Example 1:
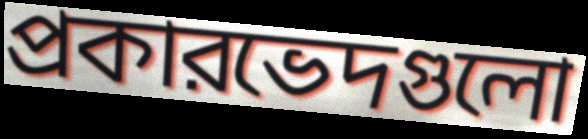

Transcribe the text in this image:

প্রকারভেদগুলো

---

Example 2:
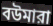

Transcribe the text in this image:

বউমারা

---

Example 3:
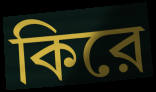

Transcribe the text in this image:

কিরে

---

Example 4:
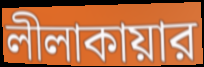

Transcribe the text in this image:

লীলাকায়ার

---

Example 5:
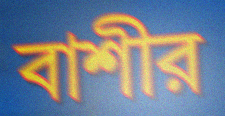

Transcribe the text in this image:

বাশীর